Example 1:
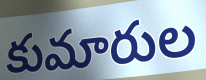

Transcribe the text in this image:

కుమారుల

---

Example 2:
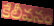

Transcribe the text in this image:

కేలీవనం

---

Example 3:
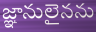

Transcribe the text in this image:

జ్ఞానులైనను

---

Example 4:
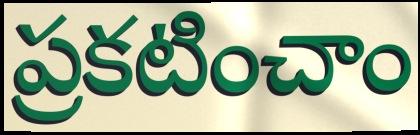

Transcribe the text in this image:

ప్రకటించాం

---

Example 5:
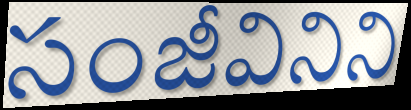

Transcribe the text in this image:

సంజీవినిని